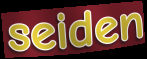
seiden